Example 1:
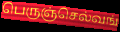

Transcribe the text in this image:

பெருஞ்செல்வங்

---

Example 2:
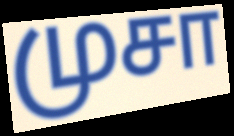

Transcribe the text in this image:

முசா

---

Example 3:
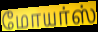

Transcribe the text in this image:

மோயர்ஸ்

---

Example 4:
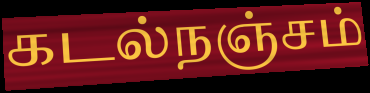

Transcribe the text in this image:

கடல்நஞ்சம்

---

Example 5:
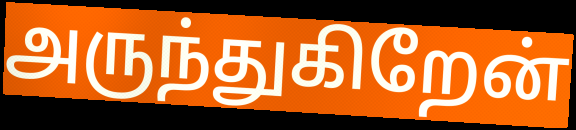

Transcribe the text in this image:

அருந்துகிறேன்